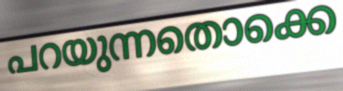
പറയുന്നതൊക്കെ